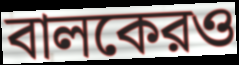
বালকেরও